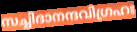
സച്ചിദാനന്ദവിഗ്രഹഃ